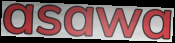
asawa